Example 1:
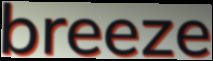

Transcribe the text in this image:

breeze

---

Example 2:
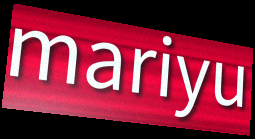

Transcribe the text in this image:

mariyu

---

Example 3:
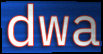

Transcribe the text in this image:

dwa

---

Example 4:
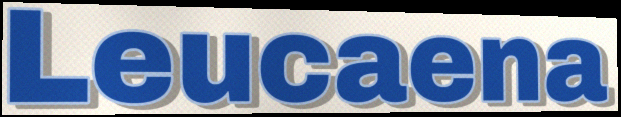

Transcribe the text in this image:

Leucaena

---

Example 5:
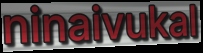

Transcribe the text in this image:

ninaivukal